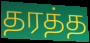
தரத்த